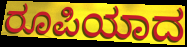
ರೂಪಿಯಾದ